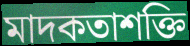
মাদকতাশক্তি